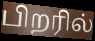
பிறரில்